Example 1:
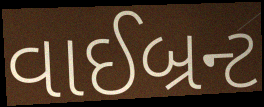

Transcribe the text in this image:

વાઈબ્રન્ટ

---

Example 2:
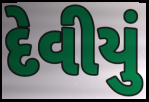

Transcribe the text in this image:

દેવીયું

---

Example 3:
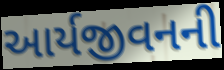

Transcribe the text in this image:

આર્યજીવનની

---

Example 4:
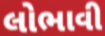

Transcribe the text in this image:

લોભાવી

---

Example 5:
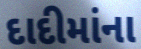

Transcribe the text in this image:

દાદીમાંના